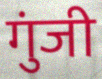
गुंजी